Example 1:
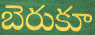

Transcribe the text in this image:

బెరుకూ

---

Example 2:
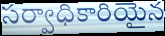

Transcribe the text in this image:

సర్వాధికారియైన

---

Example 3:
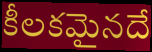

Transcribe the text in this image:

కీలకమైనదే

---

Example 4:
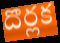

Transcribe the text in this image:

దొర్లక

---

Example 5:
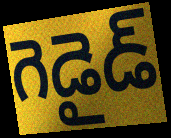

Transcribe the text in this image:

గెడైడ్